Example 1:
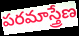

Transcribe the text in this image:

పరమాస్త్రేణ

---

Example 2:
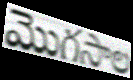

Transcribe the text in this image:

మొగసాల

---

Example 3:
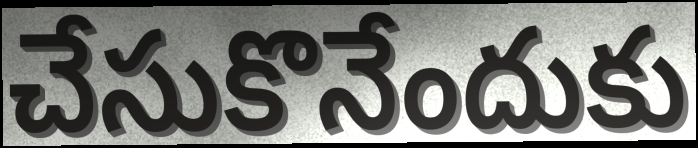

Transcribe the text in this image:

చేసుకొనేందుకు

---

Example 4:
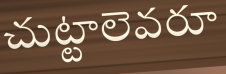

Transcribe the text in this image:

చుట్టాలెవరూ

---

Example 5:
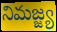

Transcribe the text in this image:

నిమజ్జ్య